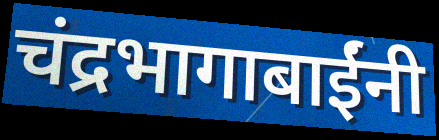
चंद्रभागाबाईंनी